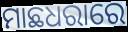
ମାଛଧରାରେ